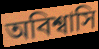
অবিশ্বাসি